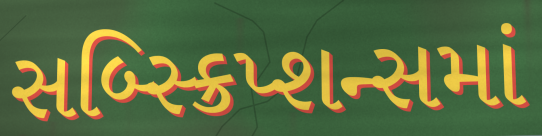
સબ્સ્ક્રિપ્શન્સમાં